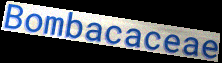
Bombacaceae